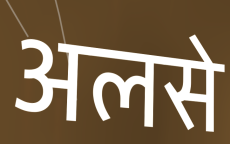
अलसे